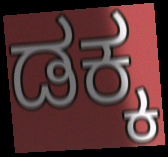
ಡಕ್ಕ